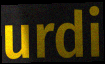
urdi